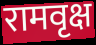
रामवृक्ष